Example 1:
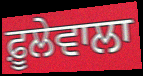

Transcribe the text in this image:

ਫ਼ੂਲੇਵਾਲਾ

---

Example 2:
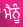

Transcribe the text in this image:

ਮੈਨੂੰ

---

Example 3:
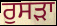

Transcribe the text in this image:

ਰੁਸੜਾ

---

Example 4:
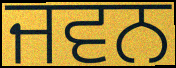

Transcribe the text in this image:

ਜਵਨ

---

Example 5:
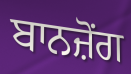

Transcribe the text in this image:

ਬਾਨਜ਼ੋਂਗ